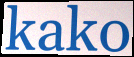
kako